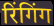
रिंगिंग